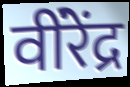
वींरेंद्र